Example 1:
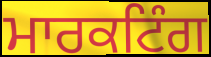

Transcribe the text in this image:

ਮਾਰਕਟਿੰਗ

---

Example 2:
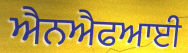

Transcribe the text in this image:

ਐਨਐਫਆਈ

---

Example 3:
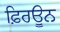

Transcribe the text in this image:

ਫ਼ਿਰਊਨ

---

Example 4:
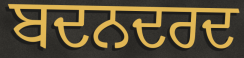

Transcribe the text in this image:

ਬਦਨਦਰਦ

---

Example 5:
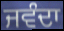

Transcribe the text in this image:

ਜਵੰਦਾ